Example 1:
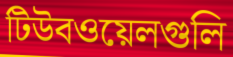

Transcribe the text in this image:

টিউবওয়েলগুলি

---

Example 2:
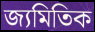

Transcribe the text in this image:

জ্যমিতিক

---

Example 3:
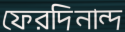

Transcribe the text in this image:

ফেরদিনান্দ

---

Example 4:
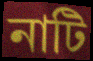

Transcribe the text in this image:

নাটি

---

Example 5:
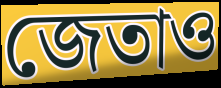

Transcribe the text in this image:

জেতাও